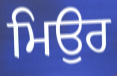
ਮਿਉਰ